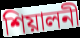
শিয়ালনী